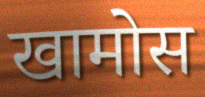
खामोस